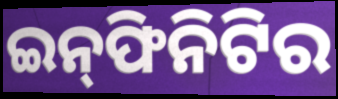
ଇନ୍‌ଫିନିଟିର